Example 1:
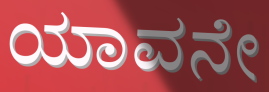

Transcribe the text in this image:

ಯಾವನೇ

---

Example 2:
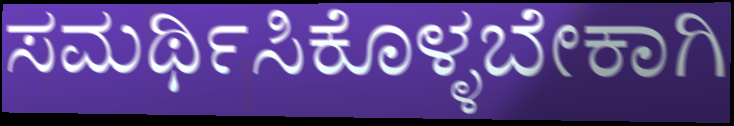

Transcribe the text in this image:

ಸಮರ್ಥಿಸಿಕೊಳ್ಳಬೇಕಾಗಿ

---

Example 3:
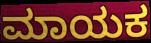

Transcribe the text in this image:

ಮಾಯಕ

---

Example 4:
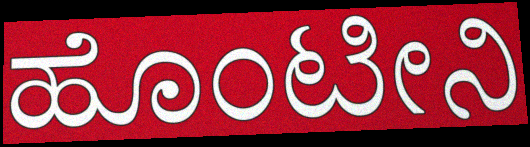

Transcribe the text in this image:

ಹೊಂಟೀನಿ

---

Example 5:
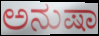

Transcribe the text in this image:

ಅನುಷಾ